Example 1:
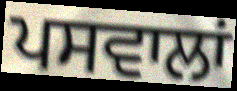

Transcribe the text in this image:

ਪਸਵਾਲਾਂ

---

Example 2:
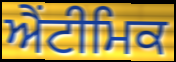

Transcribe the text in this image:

ਐਂਟੀਮਿਕ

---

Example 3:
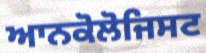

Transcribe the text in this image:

ਆਨਕੋਲੋਜਿਸਟ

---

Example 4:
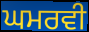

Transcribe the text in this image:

ਘਮਰਵੀ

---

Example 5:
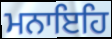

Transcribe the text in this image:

ਮਨਾਇਹਿ